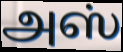
அஸ்